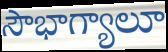
సౌభాగ్యాలూ